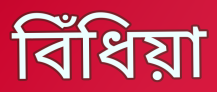
বিঁধিয়া